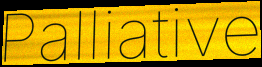
Palliative